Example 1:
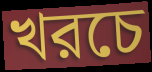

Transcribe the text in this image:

খরচে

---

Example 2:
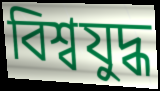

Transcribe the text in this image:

বিশ্বযুদ্ধ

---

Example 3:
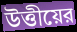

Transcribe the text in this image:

উত্তীয়ের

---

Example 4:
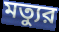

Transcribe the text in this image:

মত্যুর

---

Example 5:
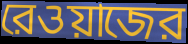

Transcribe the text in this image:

রেওয়াজের